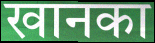
खानका